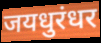
जयधुरंधर